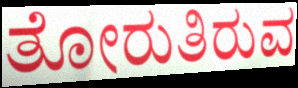
ತೋರುತಿರುವ